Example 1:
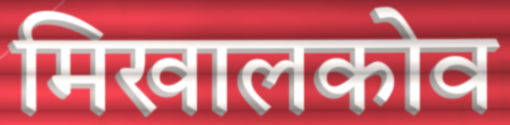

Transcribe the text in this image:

मिखालकोव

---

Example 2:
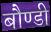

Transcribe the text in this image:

बौण्डी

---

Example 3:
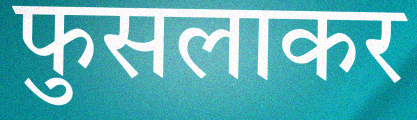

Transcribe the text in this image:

फुसलाकर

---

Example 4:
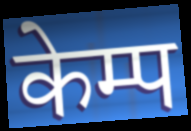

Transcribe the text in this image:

केम्प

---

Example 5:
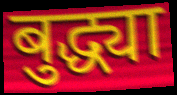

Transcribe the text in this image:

बुद्ध्या